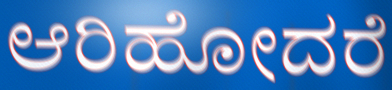
ಆರಿಹೋದರೆ